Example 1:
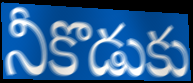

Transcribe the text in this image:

నీకొడుకు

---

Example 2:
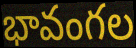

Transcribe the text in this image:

భావంగల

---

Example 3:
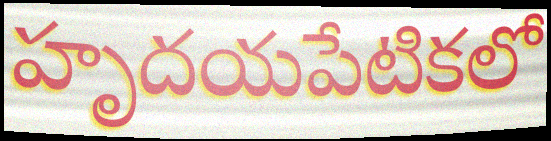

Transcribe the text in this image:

హృదయపేటికలో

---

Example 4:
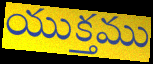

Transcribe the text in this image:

యుక్తము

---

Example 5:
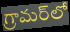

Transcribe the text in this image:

గ్రామర్‌లో